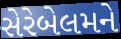
સેરેબેલમને